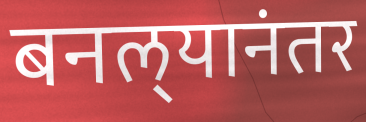
बनल्यानंतर